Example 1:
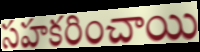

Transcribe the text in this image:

సహకరించాయి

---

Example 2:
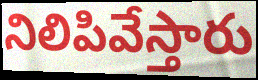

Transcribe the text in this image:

నిలిపివేస్తారు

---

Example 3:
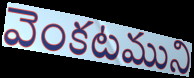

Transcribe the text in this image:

వెంకటముని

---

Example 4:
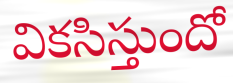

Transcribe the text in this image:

వికసిస్తుందో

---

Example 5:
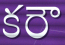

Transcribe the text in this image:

కరౌ